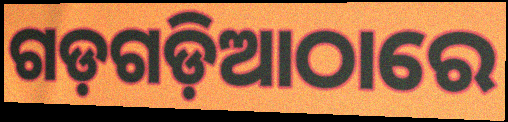
ଗଡ଼ଗଡ଼ିଆଠାରେ